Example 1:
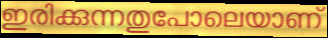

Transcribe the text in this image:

ഇരിക്കുന്നതുപോലെയാണ്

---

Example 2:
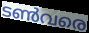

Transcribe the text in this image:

ടൺവരെ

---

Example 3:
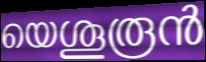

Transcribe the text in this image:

യെശൂരൂൻ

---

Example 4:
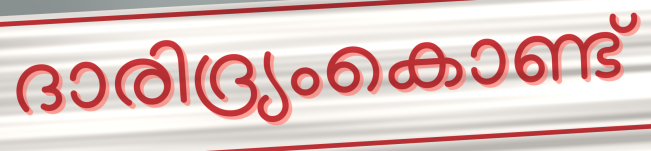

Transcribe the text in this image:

ദാരിദ്ര്യംകൊണ്ട്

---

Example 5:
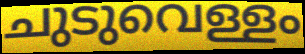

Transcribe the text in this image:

ചുടുവെള്ളം